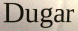
Dugar